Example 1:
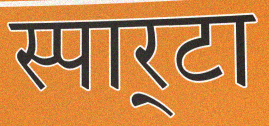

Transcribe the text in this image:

स्पार्टा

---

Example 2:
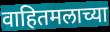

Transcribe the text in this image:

वाहितमलाच्या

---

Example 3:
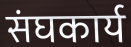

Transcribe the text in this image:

संघकार्य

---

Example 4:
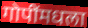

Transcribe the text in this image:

गोपींमधला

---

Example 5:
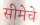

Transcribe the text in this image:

सीमेचे